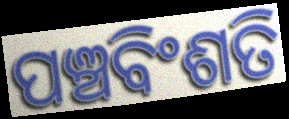
ପଞ୍ଚବିଂଶତି